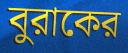
বুরাকের